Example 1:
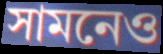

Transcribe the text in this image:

সামনেও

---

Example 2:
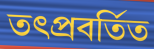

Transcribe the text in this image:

তৎপ্রবর্তিত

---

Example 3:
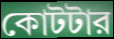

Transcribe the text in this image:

কোটটার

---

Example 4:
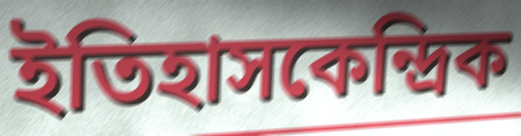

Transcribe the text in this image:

ইতিহাসকেন্দ্রিক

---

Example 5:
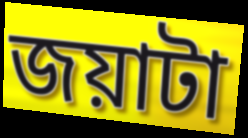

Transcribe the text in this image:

জয়াটা